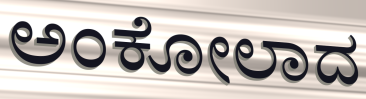
ಅಂಕೋಲಾದ